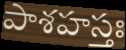
పాశహస్తః